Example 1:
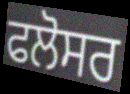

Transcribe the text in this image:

ਫਲੋਸਰ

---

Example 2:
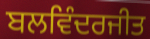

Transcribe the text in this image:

ਬਲਵਿੰਦਰਜੀਤ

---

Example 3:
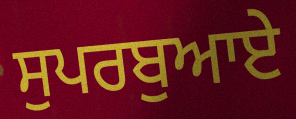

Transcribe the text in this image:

ਸੁਪਰਬੁਆਏ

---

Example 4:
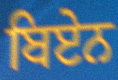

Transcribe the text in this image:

ਬਿਏਨ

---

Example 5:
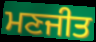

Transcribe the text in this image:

ਮਣਜੀਤ